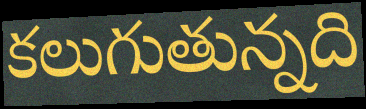
కలుగుతున్నది